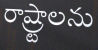
రాష్ర్టాలను